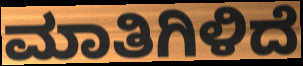
ಮಾತಿಗಿಳಿದೆ